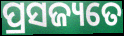
ପ୍ରସଜ୍ୟତେ